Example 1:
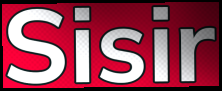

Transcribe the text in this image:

Sisir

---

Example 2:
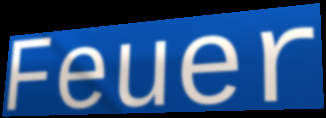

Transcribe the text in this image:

Feuer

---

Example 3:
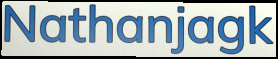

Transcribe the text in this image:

Nathanjagk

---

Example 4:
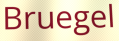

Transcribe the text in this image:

Bruegel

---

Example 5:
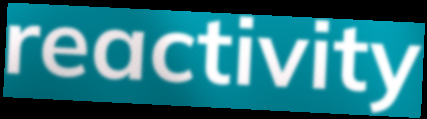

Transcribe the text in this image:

reactivity